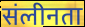
संलीनता